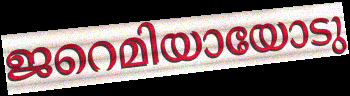
ജറെമിയായോടു